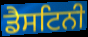
ਡੈਸਟਿਨੀ